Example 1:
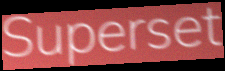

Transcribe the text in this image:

Superset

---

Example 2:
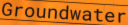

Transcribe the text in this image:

Groundwater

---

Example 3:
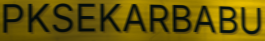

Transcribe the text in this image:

PKSEKARBABU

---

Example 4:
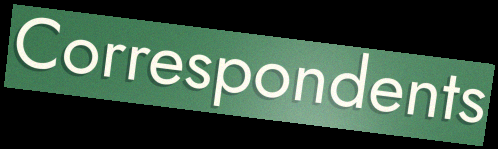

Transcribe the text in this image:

Correspondents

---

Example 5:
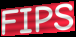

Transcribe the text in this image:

FIPS